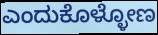
ಎಂದುಕೊಳ್ಳೋಣ